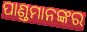
ପାଣ୍ଡମାନଙ୍କର